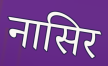
नासिर